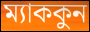
ম্যাককুন